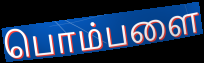
பொம்பளை